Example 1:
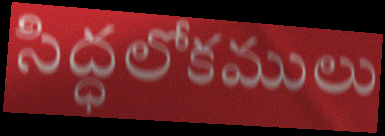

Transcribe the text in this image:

సిద్ధలోకములు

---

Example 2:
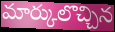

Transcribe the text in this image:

మార్కులొచ్చిన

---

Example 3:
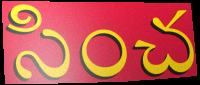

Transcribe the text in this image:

సించ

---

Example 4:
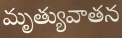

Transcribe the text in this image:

మృత్యువాతన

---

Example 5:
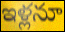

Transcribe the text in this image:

ఇళ్లనూ